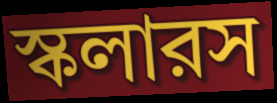
স্কলারস